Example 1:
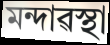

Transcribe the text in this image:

মন্দাৱস্থা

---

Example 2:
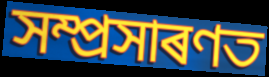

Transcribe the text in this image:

সম্প্ৰসাৰণত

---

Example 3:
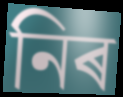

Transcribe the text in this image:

নিৰ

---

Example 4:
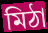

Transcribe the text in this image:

মিঠা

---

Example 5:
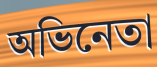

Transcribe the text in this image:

অভিনেতা